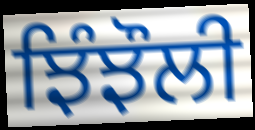
ਝਿੰਝੌਲੀ